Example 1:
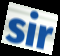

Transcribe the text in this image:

sir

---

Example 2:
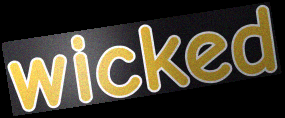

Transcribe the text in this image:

wicked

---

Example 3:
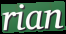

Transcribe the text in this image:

rian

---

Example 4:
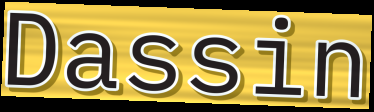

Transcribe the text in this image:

Dassin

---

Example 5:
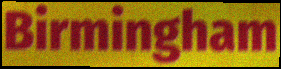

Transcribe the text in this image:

Birmingham